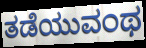
ತಡೆಯುವಂಥ